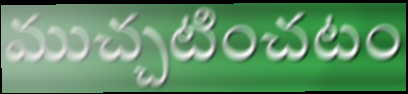
ముచ్చటించటం